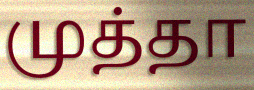
முத்தா